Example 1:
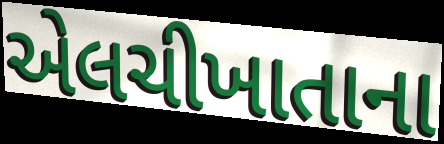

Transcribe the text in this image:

એલચીખાતાના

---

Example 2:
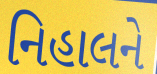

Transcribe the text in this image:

નિહાલને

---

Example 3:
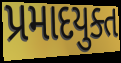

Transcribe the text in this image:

પ્રમાદયુક્ત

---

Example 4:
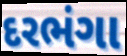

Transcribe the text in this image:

દરભંગા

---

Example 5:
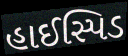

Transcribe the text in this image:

હાઈસ્પિડ